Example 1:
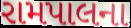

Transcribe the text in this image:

રામપાલના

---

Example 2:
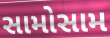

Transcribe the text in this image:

સામોસામ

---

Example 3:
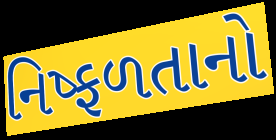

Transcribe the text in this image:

નિષ્ફળતાનો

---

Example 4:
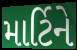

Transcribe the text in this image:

માર્ટિને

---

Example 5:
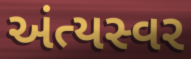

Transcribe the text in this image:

અંત્યસ્વર